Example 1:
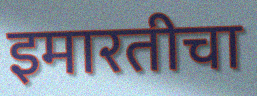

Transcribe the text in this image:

इमारतीचा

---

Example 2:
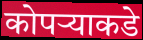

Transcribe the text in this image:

कोपऱ्याकडे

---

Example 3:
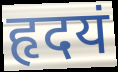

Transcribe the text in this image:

हृदयं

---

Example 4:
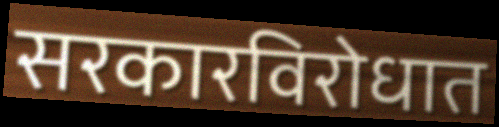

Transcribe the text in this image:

सरकारविरोधात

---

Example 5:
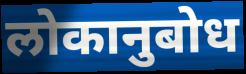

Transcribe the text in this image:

लोकानुबोध